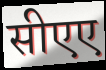
सीएए